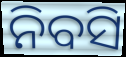
ନିବସି